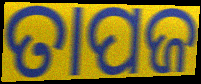
ତାପଜ